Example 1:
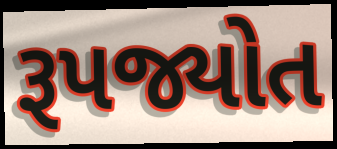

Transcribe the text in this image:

રૂપજ્યોત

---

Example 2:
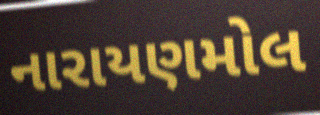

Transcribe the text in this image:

નારાયણમોલ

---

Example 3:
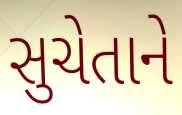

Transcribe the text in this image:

સુચેતાને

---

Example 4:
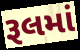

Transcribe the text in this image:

રૂલમાં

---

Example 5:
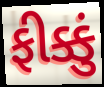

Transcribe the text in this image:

ફીક્કું